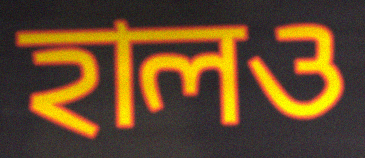
হালও